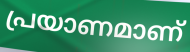
പ്രയാണമാണ്